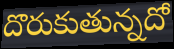
దొరుకుతున్నదో